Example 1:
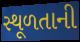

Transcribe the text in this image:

સ્થૂળતાની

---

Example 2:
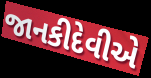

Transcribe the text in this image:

જાનકીદેવીએ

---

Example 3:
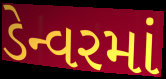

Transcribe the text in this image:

ડેન્વરમાં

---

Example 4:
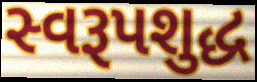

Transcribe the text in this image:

સ્વરૂપશુદ્ધ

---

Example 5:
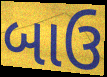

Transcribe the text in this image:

બાઉ